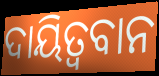
ଦାୟିତ୍ବବାନ